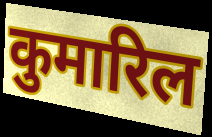
कुमारिल